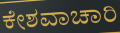
ಕೇಶವಾಚಾರಿ